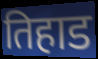
तिहाड